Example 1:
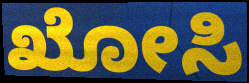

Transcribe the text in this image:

ಖೋಸಿ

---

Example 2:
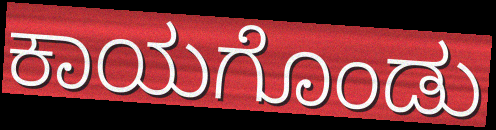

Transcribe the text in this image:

ಕಾಯಗೊಂಡು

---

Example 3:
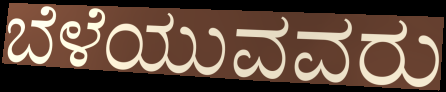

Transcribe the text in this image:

ಬೆಳೆಯುವವರು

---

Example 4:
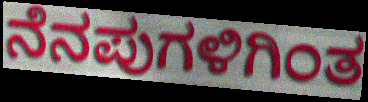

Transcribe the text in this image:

ನೆನಪುಗಳಿಗಿಂತ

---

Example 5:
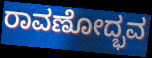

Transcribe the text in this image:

ರಾವಣೋದ್ಭವ